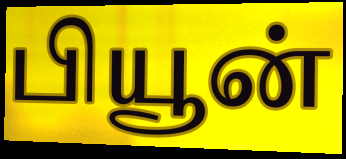
பியூன்